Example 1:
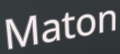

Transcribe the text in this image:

Maton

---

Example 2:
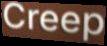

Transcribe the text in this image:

Creep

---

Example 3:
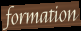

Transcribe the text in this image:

formation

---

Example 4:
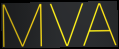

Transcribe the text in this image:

MVA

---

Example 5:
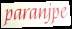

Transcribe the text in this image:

paranjpe